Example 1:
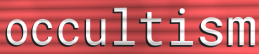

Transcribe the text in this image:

occultism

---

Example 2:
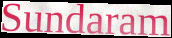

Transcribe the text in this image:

Sundaram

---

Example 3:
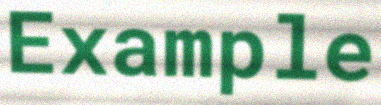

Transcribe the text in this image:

Example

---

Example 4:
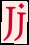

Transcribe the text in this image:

Jj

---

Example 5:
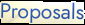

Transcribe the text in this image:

Proposals